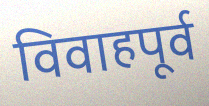
विवाहपूर्व